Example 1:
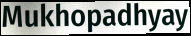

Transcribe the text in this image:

Mukhopadhyay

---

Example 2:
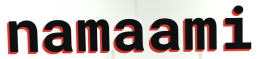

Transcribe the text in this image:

namaami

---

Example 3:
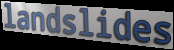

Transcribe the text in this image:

landslides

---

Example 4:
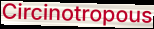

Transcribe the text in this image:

Circinotropous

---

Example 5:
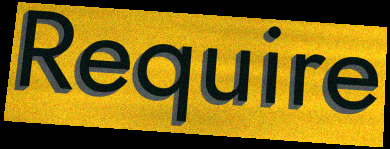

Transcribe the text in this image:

Require